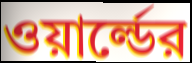
ওয়ার্ল্ডের